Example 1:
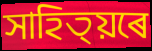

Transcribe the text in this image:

সাহিত্য়ৰে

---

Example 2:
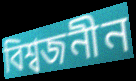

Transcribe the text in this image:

বিশ্বজনীন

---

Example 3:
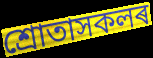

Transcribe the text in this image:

শ্ৰোতাসকলৰ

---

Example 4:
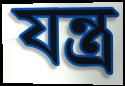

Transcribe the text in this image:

যন্ত্ৰ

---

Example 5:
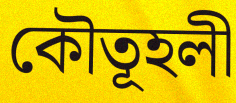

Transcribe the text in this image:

কৌতূহলী